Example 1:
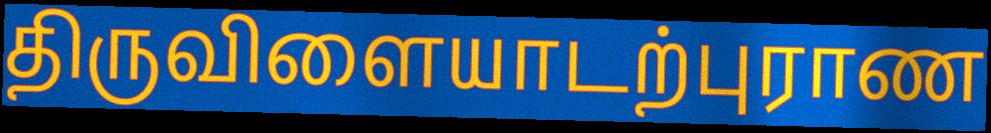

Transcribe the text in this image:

திருவிளையாடற்புராண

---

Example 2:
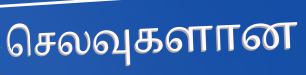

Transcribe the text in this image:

செலவுகளான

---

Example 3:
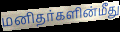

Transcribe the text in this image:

மனிதர்களின்மீது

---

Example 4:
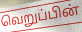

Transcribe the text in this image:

வெறுப்பின்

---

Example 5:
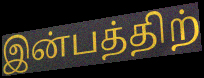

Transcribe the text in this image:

இன்பத்திற்